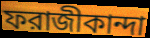
ফরাজীকান্দা